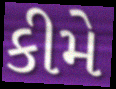
કીમે